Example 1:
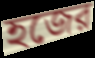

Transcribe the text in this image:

হজের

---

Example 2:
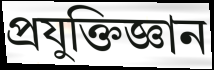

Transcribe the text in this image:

প্রযুক্তিজ্ঞান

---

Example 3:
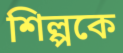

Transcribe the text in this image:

শিল্পকে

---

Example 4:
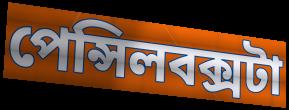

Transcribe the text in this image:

পেন্সিলবক্সটা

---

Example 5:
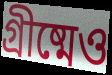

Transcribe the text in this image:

গ্রীষ্মেও